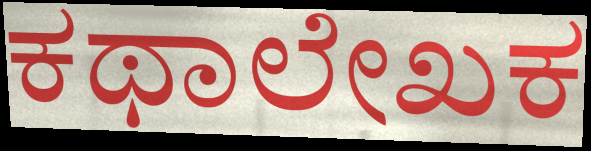
ಕಥಾಲೇಖಕ